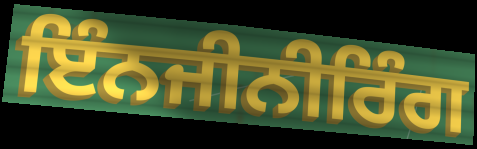
ਇੰਨਜੀਨੀਰਿੰਗ